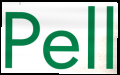
Pell